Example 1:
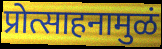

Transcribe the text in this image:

प्रोत्साहनामुळं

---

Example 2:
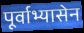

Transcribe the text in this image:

पूर्वाभ्यासेन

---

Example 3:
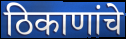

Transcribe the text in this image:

ठिकाणांचे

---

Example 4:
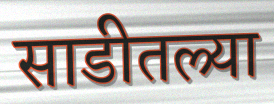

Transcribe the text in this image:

साडीतल्या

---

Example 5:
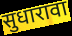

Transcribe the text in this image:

सुधारावा